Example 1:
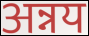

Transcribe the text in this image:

अन्नय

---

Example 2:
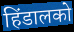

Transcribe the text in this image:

हिंडालको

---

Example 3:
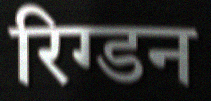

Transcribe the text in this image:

रिग्डन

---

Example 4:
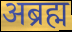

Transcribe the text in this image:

अब्रह्म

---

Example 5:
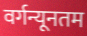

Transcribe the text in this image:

वर्गन्यूनतम